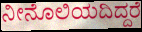
ನೀನೊಲಿಯದಿದ್ದರೆ